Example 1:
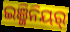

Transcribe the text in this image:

ଇଞ୍ଜିନିୟର୍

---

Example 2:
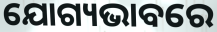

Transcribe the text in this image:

ଯୋଗ୍ୟଭାବରେ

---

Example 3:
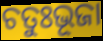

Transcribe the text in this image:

ଚତୁଃଭୂଜା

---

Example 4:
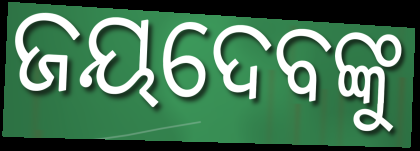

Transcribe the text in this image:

ଜୟଦେବଙ୍କୁ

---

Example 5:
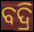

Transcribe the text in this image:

ବଦ୍ରି